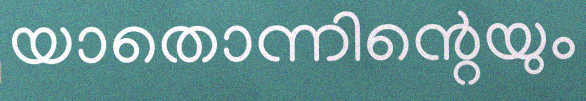
യാതൊന്നിന്റെയും